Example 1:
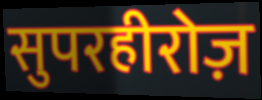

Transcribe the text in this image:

सुपरहीरोज़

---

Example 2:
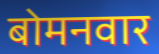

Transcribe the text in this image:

बोमनवार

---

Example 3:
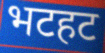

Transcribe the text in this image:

भटहट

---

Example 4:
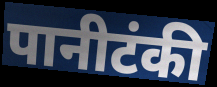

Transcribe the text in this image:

पानीटंकी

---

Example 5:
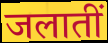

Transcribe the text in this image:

जलातीं